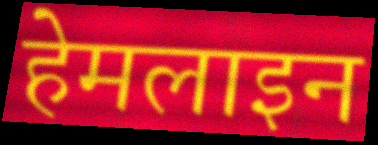
हेमलाइन